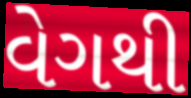
વેગથી